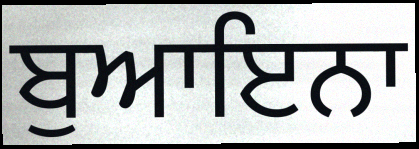
ਬੁਆਇਨਾ